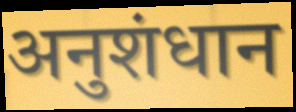
अनुशंधान